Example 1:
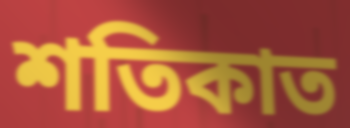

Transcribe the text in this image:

শতিকাত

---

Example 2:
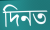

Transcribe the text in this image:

দিনত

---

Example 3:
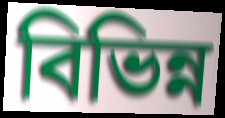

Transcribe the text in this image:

বিভিন্ন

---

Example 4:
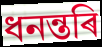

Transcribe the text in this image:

ধনন্তৰি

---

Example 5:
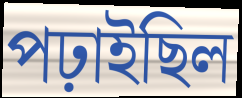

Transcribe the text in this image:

পঢ়াইছিল